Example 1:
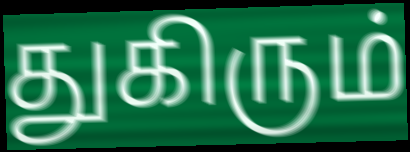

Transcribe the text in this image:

துகிரும்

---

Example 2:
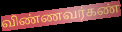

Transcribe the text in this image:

விண்ணவர்கண்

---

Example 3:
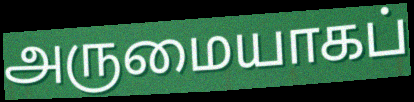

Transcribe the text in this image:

அருமையாகப்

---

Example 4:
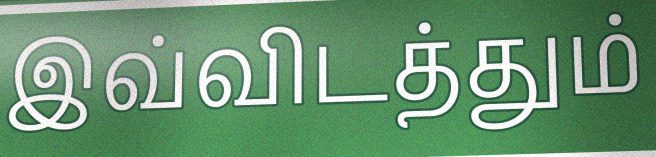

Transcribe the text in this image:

இவ்விடத்தும்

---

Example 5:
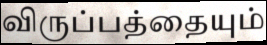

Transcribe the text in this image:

விருப்பத்தையும்